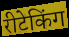
रीटेकिंग